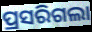
ପ୍ରସରିଗଲା